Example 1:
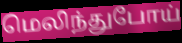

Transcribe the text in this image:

மெலிந்துபோய்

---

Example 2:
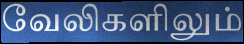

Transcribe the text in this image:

வேலிகளிலும்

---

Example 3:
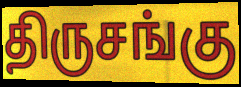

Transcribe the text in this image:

திருசங்கு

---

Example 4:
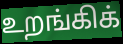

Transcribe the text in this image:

உறங்கிக்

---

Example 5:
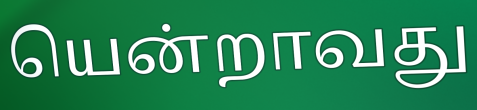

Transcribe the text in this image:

யென்றாவது